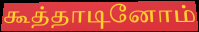
கூத்தாடினோம்